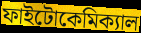
ফাইটোকেমিক্যাল